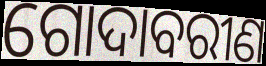
ଗୋଦାବରୀଣ